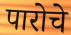
पारोचे